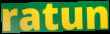
ratun